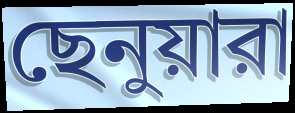
ছেনুয়ারা